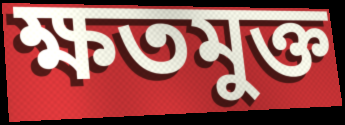
ক্ষতমুক্ত